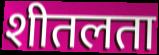
शीतलता